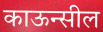
काऊन्सील